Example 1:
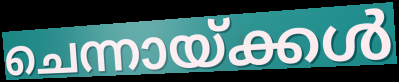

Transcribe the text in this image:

ചെന്നായ്ക്കൾ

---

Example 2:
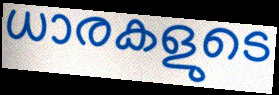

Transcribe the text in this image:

ധാരകളുടെ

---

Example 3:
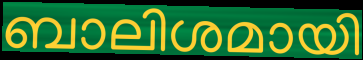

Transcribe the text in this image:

ബാലിശമായി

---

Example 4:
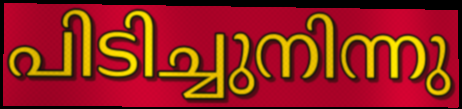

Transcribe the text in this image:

പിടിച്ചുനിന്നു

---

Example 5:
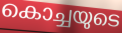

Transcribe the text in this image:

കൊച്ചയുടെ